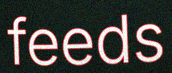
feeds